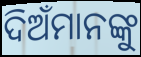
ଦିଅଁମାନଙ୍କୁ